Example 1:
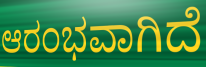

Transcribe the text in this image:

ಆರಂಭವಾಗಿದೆ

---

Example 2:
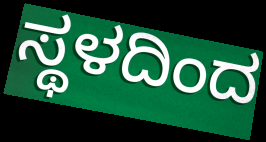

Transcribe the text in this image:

ಸ್ಥಳದಿಂದ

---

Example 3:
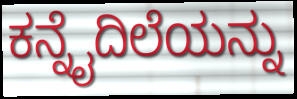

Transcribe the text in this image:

ಕನ್ನೈದಿಲೆಯನ್ನು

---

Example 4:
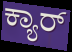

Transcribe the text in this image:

ಕ್ಯಾರ್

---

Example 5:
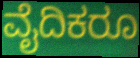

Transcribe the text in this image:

ವೈದಿಕರೂ